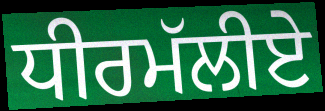
ਧੀਰਮੱਲੀਏ